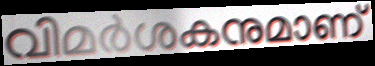
വിമർശകനുമാണ്